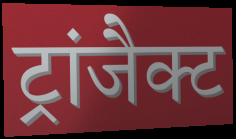
ट्रांजैक्ट